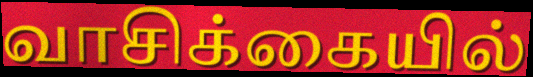
வாசிக்கையில்